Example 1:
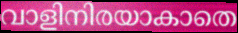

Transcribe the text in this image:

വാളിനിരയാകാതെ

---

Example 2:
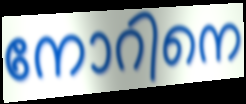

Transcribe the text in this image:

നോറിനെ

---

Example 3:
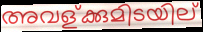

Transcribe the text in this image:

അവള്ക്കുമിടയില്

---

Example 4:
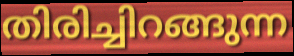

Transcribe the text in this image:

തിരിച്ചിറങ്ങുന്ന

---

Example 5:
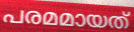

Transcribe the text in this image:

പരമമായത്